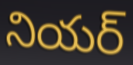
నియర్